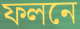
ফলনে